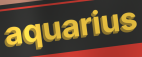
aquarius